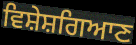
ਵਿਸ਼ੇਸ਼ਗਿਆਣ